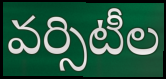
వర్సిటీల